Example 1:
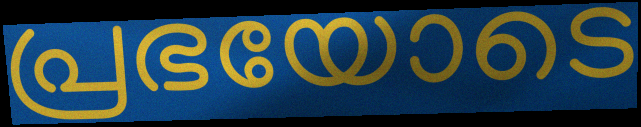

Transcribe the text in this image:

പ്രഭയോടെ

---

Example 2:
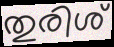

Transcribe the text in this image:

തുരിശ്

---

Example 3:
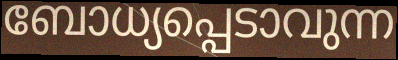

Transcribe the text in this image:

ബോധ്യപ്പെടാവുന്ന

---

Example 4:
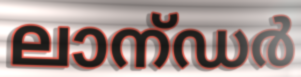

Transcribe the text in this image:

ലാന്ഡർ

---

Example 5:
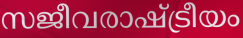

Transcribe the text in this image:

സജീവരാഷ്ട്രീയം